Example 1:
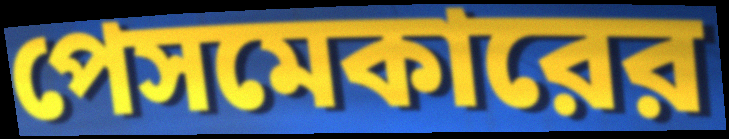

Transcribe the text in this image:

পেসমেকারের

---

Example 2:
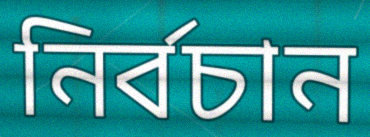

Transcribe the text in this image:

নির্বচান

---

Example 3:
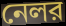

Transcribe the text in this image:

নেলর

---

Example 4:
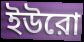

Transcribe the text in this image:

ইউরো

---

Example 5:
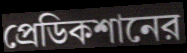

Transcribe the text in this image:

প্রেডিকশানের